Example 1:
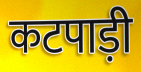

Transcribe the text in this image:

कटपाड़ी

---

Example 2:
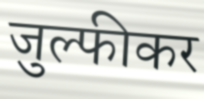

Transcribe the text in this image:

जुल्फीकर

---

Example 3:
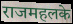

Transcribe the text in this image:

राजमहलके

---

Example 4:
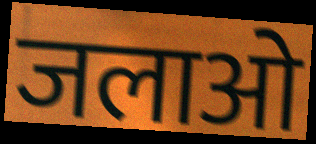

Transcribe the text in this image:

जलाओ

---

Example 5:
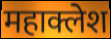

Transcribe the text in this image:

महाक्लेश